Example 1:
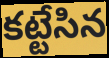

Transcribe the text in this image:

కట్టేసిన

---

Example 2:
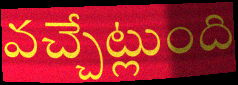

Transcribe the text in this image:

వచ్చేట్లుంది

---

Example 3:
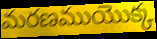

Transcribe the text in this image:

మరణముయొక్క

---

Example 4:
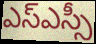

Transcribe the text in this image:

ఎస్ఎస్సీ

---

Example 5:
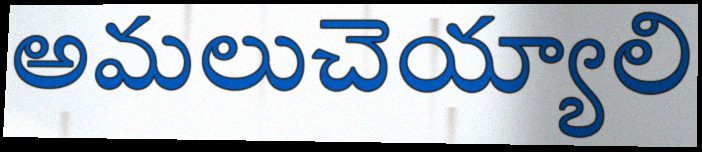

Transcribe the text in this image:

అమలుచెయ్యాలి